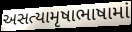
અસત્યામૃષાભાષામાં